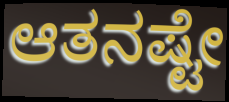
ಆತನಷ್ಟೇ